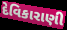
દેવિકારાણી